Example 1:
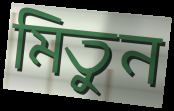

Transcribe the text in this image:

মিতুন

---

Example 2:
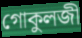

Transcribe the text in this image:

গোকুলজী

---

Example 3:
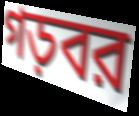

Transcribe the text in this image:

গড়বর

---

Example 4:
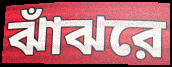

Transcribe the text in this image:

ঝাঁঝরে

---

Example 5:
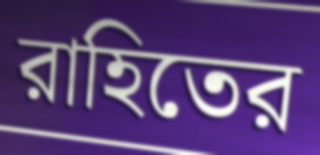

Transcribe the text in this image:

রাহিতের